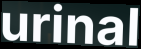
urinal